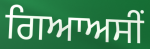
ਗਿਆਅਸੀਂ